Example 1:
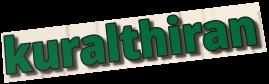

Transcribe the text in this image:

kuralthiran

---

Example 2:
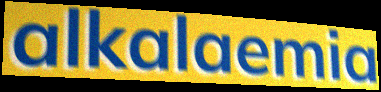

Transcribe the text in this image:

alkalaemia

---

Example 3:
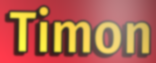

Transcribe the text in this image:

Timon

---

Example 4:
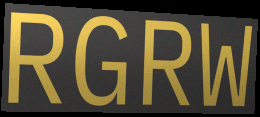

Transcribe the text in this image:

RGRW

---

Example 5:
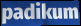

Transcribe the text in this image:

padikum